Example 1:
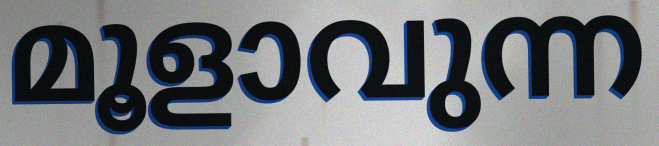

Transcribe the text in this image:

മൂളാവുന്ന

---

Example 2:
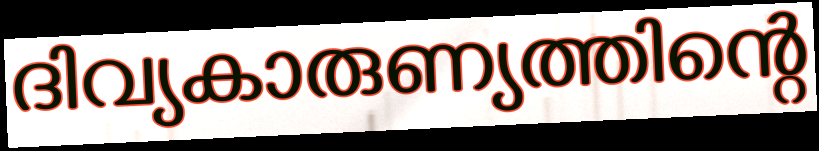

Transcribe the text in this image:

ദിവ്യകാരുണ്യത്തിന്റെ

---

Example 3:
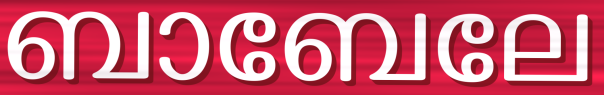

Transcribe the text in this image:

ബാബേലേ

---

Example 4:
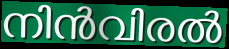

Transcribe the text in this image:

നിൻവിരൽ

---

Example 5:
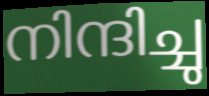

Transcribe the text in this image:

നിന്ദിച്ചു